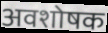
अवशोषक